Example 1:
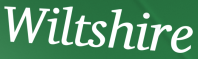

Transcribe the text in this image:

Wiltshire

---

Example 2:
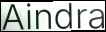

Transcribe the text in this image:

Aindra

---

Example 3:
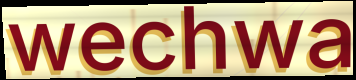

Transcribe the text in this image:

wechwa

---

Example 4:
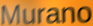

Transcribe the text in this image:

Murano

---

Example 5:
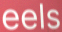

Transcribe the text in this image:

eels